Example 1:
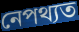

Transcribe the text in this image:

নেপথ্যত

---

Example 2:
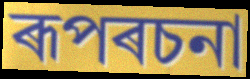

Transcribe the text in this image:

ৰূপৰচনা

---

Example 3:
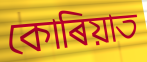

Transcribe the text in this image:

কোৰিয়াত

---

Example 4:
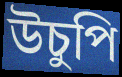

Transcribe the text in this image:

উচুপি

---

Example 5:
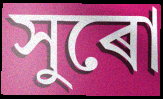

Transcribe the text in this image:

সুৰো